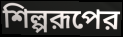
শিল্পরূপের